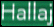
Hallaj